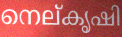
നെല്കൃഷി